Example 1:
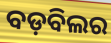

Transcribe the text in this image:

ବଡ଼ବିଲର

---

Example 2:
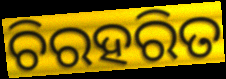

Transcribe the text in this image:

ଚିରହରିତ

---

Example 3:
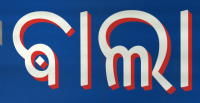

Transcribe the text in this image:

ଵାଲା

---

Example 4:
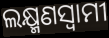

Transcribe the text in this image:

ଲକ୍ଷ୍ମଣସ୍ଵାମୀ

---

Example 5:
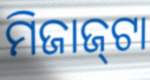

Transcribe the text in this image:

ମିଜାଜ୍‌ଟା